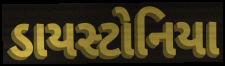
ડાયસ્ટોનિયા